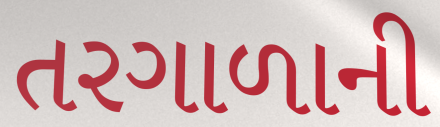
તરગાળાની